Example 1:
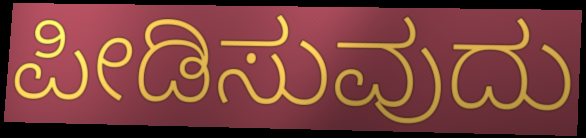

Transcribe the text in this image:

ಪೀಡಿಸುವುದು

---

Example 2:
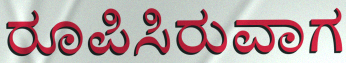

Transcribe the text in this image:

ರೂಪಿಸಿರುವಾಗ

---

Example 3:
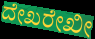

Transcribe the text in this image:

ದೇಖರೇಖೀ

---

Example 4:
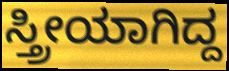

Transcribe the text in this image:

ಸ್ತ್ರೀಯಾಗಿದ್ದ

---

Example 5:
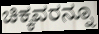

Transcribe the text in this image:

ಚಿಕ್ಕವರನ್ನೂ